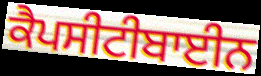
ਕੈਪਸੀਟੀਬਾਈਨ